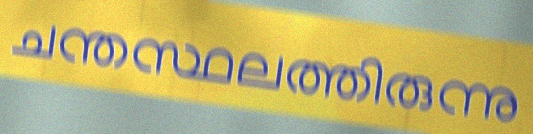
ചന്തസ്ഥലത്തിരുന്നു